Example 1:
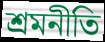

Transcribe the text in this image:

শ্রমনীতি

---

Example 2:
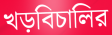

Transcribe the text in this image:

খড়বিচালির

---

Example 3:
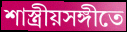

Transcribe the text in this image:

শাস্ত্রীয়সঙ্গীতে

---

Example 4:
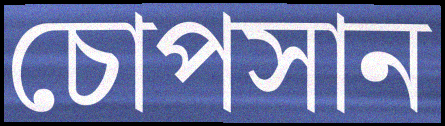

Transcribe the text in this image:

চোপসান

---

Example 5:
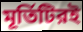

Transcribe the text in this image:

মূর্তিটিরই